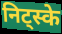
निट्स्के